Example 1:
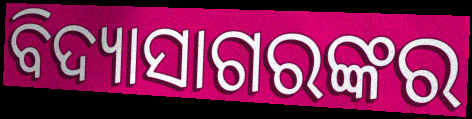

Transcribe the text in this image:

ବିଦ୍ୟାସାଗରଙ୍କର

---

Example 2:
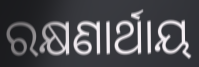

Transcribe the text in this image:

ରକ୍ଷଣାର୍ଥାୟ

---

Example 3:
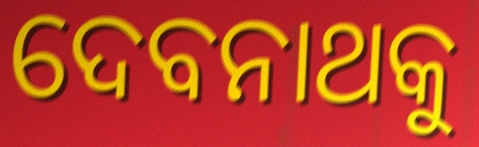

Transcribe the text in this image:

ଦେବନାଥକୁ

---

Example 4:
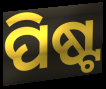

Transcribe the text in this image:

ପିଷ୍ଟ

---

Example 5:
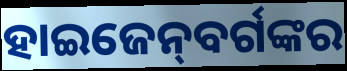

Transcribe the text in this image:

ହାଇଜେନ୍‌ବର୍ଗଙ୍କର